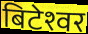
बिटेश्वर